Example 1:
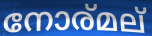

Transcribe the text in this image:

നോര്മല്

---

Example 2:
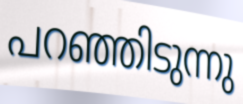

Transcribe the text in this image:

പറഞ്ഞിടുന്നു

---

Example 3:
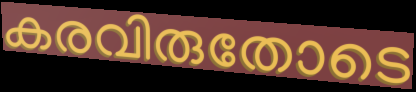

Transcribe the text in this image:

കരവിരുതോടെ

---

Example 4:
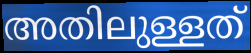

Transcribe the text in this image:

അതിലുള്ളത്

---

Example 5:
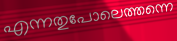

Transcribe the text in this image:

എന്നതുപോലെത്തന്നെ